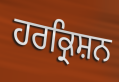
ਹਰਕ੍ਰਿਸ਼ਨ